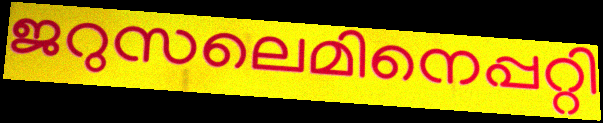
ജറുസലെമിനെപ്പറ്റി